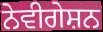
ਨੇਵੀਗੇਸ਼ਨ